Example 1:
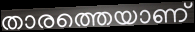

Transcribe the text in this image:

താരത്തെയാണ്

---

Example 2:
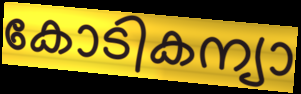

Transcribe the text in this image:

കോടികന്യാ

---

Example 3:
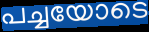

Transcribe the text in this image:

പച്ചയോടെ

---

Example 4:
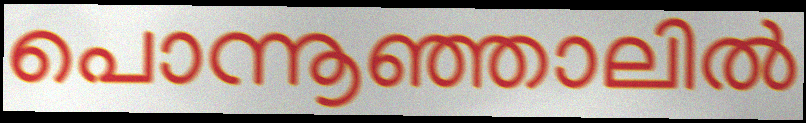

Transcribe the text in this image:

പൊന്നൂഞ്ഞാലിൽ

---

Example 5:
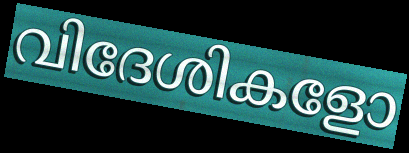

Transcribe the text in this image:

വിദേശികളോ